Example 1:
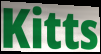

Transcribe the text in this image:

Kitts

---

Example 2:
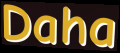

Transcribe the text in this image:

Daha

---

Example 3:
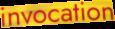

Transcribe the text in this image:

invocation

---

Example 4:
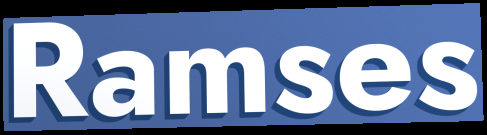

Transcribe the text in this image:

Ramses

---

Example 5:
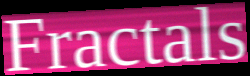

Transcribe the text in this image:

Fractals